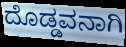
ದೊಡ್ಡವನಾಗಿ